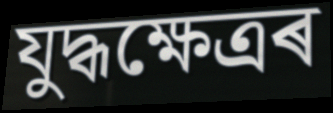
যুদ্ধক্ষেত্ৰৰ